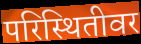
परिस्थितीवर